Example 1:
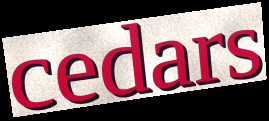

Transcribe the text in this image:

cedars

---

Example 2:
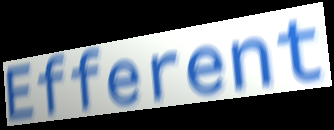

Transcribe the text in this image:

Efferent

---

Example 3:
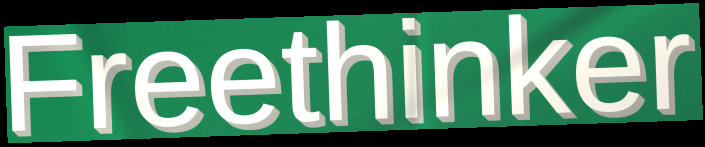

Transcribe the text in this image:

Freethinker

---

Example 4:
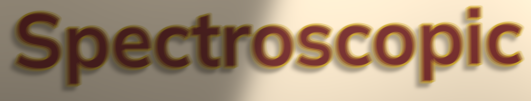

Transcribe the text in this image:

Spectroscopic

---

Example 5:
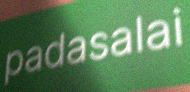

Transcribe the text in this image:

padasalai